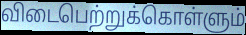
விடைபெற்றுக்கொள்ளும்